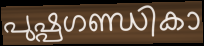
പുഷ്പഗണ്ഡികാ